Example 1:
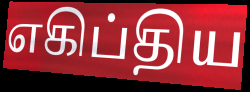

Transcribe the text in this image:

எகிப்திய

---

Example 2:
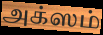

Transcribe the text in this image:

அக்ஸம்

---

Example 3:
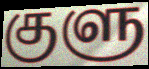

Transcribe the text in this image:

குளு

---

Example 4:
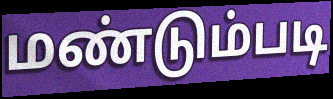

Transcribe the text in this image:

மண்டும்படி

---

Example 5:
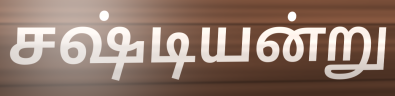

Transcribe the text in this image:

சஷ்டியன்று